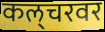
कल्चरवर